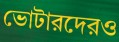
ভোটারদেরও